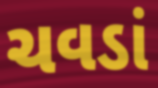
ચવડાં